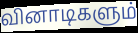
வினாடிகளும்